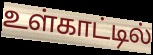
உள்காட்டில்